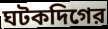
ঘটকদিগের